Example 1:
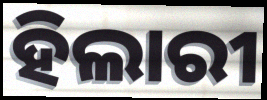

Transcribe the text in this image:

ହିଲାରୀ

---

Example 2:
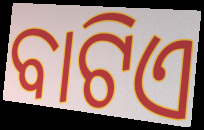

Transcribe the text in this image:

ବାଟିଏ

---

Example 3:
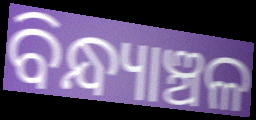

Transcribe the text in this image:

ବିନ୍ଧ୍ୟାଞ୍ଚଳ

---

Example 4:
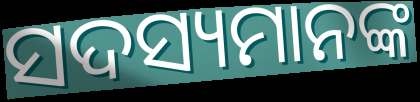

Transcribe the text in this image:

ସଦସ୍ୟମାନଙ୍କ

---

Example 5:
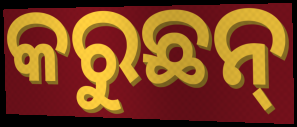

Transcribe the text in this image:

କରୁଛନ୍